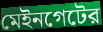
মেইনগেটের